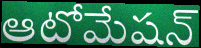
ఆటోమేషన్